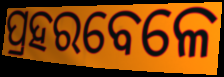
ପ୍ରହରବେଳେ